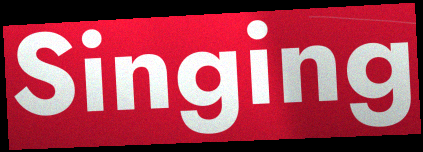
Singing